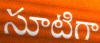
సూటిగా